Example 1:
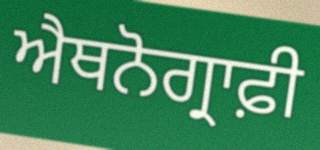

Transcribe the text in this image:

ਐਥਨੋਗ੍ਰਾਫ਼ੀ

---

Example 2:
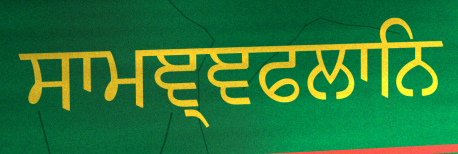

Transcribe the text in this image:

ਸਾਮਞ੍ਞਫਲਾਨਿ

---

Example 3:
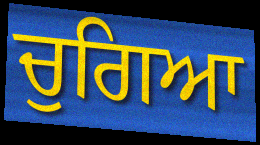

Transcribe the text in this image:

ਚੁਗਿਆ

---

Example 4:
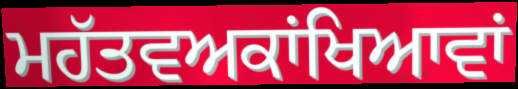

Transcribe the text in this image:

ਮਹੱਤਵਅਕਾਂਖਿਆਵਾਂ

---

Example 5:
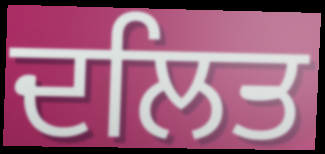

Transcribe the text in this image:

ਦਲਿਤ